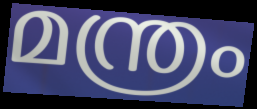
മന്ത്രം